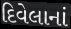
દિવેલાનાં